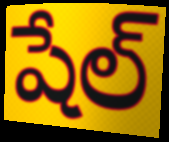
షేల్